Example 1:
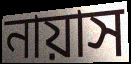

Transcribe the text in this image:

নায়াস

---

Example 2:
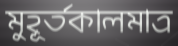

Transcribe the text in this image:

মুহূর্তকালমাত্র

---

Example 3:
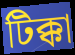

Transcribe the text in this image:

টিক্কা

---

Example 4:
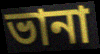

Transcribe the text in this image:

ভানা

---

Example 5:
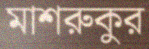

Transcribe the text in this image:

মাশরুকুর